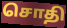
சொதி